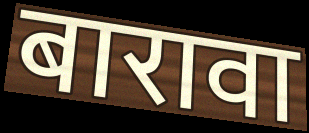
बारावा